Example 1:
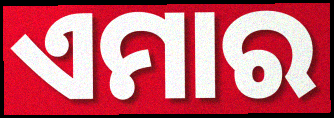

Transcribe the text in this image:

ଏମାର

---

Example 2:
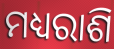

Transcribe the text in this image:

ମଧ୍ୟରାଶି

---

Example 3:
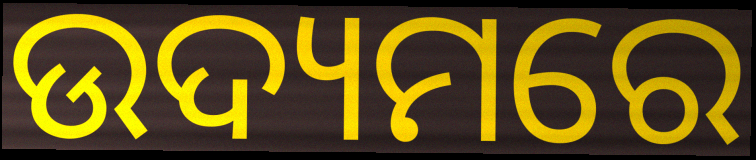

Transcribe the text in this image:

ଉଦ୍ୟମରେ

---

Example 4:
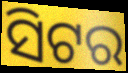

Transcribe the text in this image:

ସିଟର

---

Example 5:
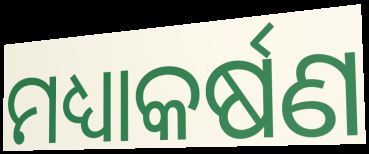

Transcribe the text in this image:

ମଧ୍ୟାକର୍ଷଣ